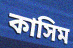
কাসিম